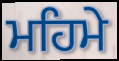
ਮਹਿਮੇ